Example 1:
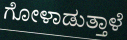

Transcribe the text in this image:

ಗೋಳಾಡುತ್ತಾಳೆ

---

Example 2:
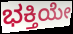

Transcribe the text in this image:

ಭಕ್ತಿಯೇ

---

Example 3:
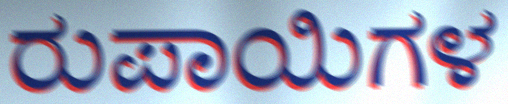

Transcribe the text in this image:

ರುಪಾಯಿಗಳ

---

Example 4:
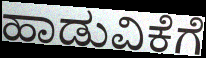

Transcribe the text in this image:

ಹಾಡುವಿಕೆಗೆ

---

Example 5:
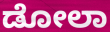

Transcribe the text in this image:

ಡೋಲಾ